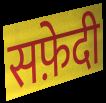
सफ़ेदी